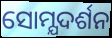
ସୋମ୍ଯଦର୍ଶନ